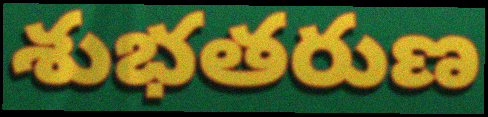
శుభతరుణ